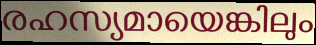
രഹസ്യമായെങ്കിലും